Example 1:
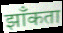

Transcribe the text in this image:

झाँकता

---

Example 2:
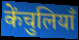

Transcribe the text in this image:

केंचुलियाँ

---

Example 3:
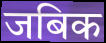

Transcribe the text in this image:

जबिक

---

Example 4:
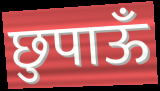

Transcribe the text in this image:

छुपाऊँ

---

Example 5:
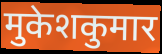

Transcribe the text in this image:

मुकेशकुमार